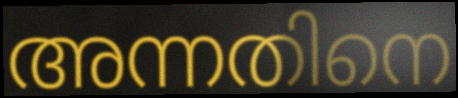
അന്നതിനെ